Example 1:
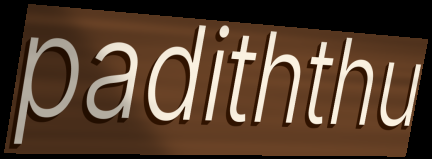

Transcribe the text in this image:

padiththu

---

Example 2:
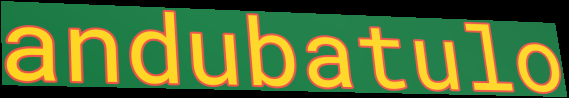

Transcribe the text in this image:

andubatulo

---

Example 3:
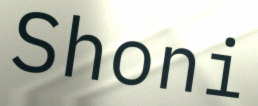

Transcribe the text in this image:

Shoni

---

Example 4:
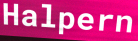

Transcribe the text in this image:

Halpern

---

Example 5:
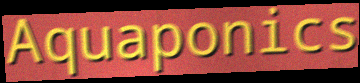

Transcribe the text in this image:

Aquaponics